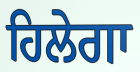
ਹਿਲੇਗਾ